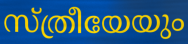
സ്ത്രീയേയും